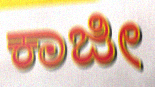
ಕಾಜೀ